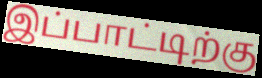
இப்பாட்டிற்கு